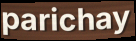
parichay